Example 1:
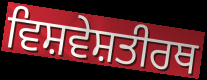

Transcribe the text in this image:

ਵਿਸ਼ਵੇਸ਼ਤੀਰਥ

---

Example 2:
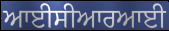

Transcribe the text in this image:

ਆਈਸੀਆਰਆਈ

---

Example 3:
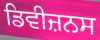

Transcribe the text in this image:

ਡਿਵੀਜ਼ਨਸ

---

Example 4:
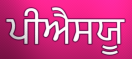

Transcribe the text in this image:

ਪੀਐਸਯੂ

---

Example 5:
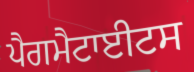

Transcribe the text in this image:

ਪੈਗਮੈਟਾਈਟਸ